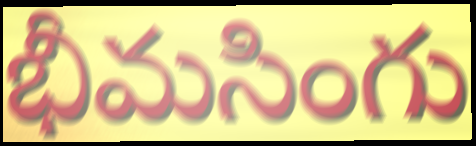
భీమసింగు